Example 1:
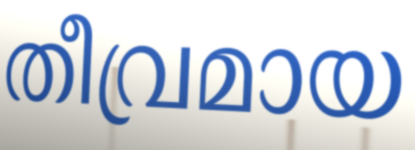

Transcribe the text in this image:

തീവ്രമായ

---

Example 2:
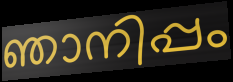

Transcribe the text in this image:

ഞാനിപ്പം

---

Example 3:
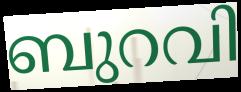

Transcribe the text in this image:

ബുറവി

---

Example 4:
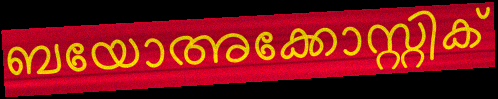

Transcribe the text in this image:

ബയോഅക്കോസ്റ്റിക്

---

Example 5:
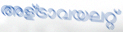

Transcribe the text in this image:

അള്ട്രാവയലറ്റ്